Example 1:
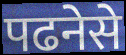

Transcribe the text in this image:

पढनेसे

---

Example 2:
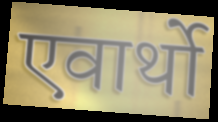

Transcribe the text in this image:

एवार्थो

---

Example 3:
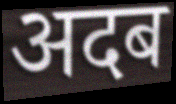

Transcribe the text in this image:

अदब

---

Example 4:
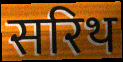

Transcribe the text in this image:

सरिथ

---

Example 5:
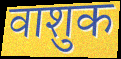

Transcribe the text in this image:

वाशुक